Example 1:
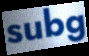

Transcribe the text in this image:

subg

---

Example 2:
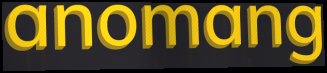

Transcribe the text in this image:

anomang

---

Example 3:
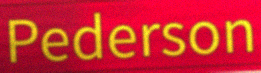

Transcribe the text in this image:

Pederson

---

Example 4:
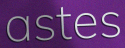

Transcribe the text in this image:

astes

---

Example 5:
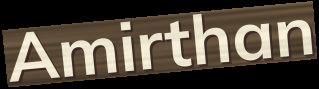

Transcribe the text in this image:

Amirthan